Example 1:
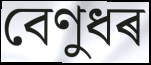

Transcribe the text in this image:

বেণুধৰ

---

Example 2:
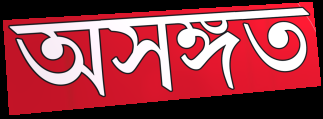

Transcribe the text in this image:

অসঙ্গত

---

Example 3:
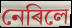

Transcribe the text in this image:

নেৰিলে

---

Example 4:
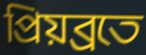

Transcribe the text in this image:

প্ৰিয়ব্ৰতে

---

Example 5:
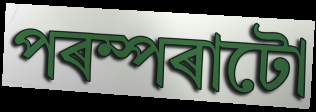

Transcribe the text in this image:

পৰম্পৰাটো